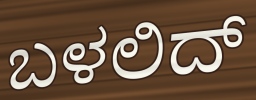
ಬಳಲಿದ್